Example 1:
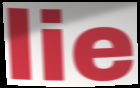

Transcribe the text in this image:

lie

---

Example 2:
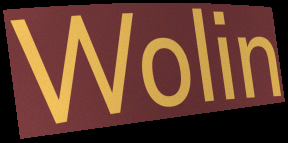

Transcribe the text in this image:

Wolin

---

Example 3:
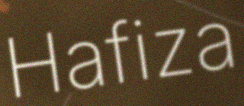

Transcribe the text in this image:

Hafiza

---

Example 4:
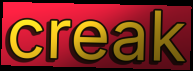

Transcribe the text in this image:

creak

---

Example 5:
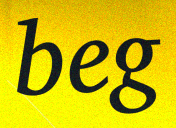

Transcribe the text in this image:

beg